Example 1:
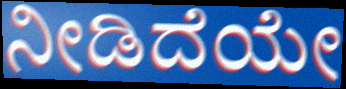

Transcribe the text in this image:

ನೀಡಿದೆಯೇ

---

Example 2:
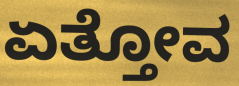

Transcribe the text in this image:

ಏತ್ತೋವ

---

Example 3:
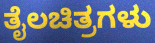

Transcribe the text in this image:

ತೈಲಚಿತ್ರಗಳು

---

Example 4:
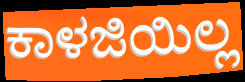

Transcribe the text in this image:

ಕಾಳಜಿಯಿಲ್ಲ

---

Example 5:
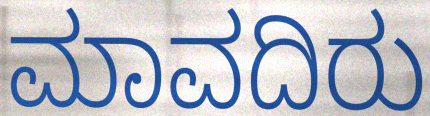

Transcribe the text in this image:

ಮಾವದಿರು